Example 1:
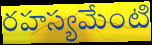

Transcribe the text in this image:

రహస్యమేంటి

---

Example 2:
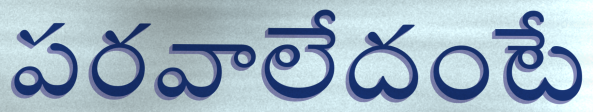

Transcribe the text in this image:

పరవాలేదంటే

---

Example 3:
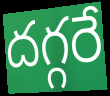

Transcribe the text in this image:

దగ్గరే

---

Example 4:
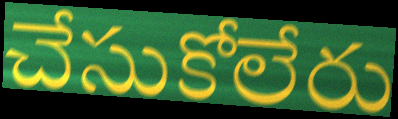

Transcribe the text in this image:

చేసుకోలేరు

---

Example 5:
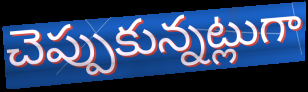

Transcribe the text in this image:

చెప్పుకున్నట్లుగా